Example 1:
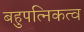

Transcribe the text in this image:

बहुपत्निकत्व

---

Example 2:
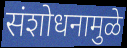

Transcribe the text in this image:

संशोधनामुळे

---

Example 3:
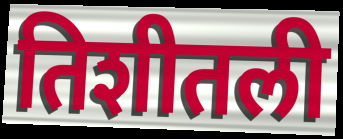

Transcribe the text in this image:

तिशीतली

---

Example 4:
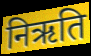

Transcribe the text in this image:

निऋति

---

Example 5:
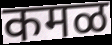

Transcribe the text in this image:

कमळ